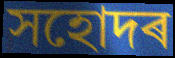
সহোদৰ